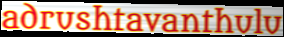
adrushtavanthulu